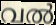
വൽ